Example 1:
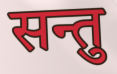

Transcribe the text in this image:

सन्‍तु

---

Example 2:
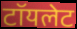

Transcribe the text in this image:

टॉयलेट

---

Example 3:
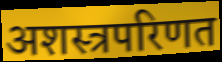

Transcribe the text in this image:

अशस्त्रपरिणत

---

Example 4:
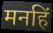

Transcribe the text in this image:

मनहिं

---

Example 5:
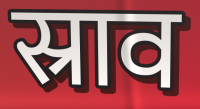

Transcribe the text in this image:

स्राव